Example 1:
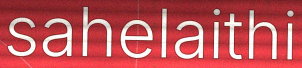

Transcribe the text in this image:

sahelaithi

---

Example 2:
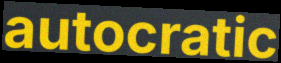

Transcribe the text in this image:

autocratic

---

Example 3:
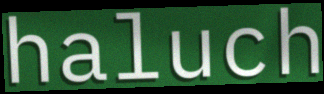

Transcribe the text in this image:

haluch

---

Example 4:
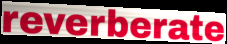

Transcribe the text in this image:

reverberate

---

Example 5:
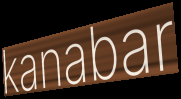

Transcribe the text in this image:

kanabar